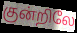
குன்றிலே